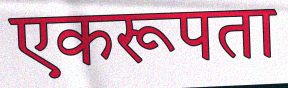
एकरूपता